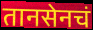
तानसेनचं